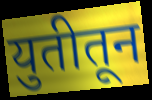
युतीतून